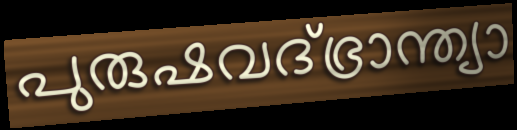
പുരുഷവദ്ഭ്രാന്ത്യാ